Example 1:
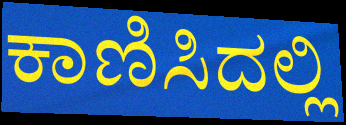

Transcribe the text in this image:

ಕಾಣಿಸಿದಲ್ಲಿ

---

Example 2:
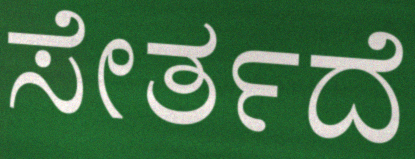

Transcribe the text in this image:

ಸೇರ್ತದೆ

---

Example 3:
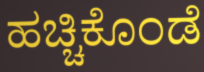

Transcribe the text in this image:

ಹಚ್ಚಿಕೊಂಡೆ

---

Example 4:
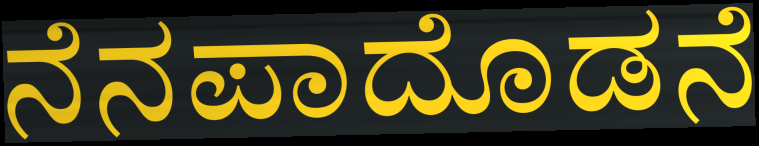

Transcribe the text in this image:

ನೆನಪಾದೊಡನೆ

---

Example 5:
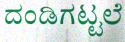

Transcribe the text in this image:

ದಂಡಿಗಟ್ಟಲೆ